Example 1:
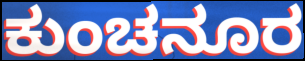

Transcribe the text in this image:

ಕುಂಚನೂರ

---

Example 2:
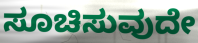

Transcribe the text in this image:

ಸೂಚಿಸುವುದೇ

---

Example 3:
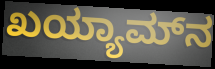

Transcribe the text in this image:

ಖಯ್ಯಾಮ್‌ನ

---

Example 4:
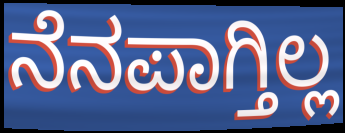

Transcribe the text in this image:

ನೆನಪಾಗ್ತಿಲ್ಲ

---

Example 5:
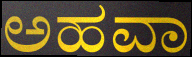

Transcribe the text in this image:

ಅಹವಾ